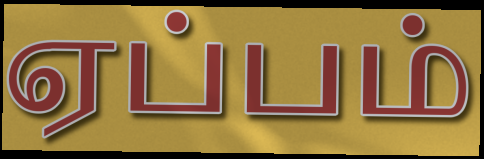
ஏப்பம்